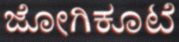
ಜೋಗಿಕೂಟೆ